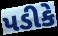
પડીકે